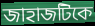
জাহাজটিকে